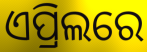
ଏପ୍ରିଲରେ